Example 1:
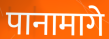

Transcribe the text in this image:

पानामागे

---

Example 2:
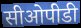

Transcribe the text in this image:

सीओपीडी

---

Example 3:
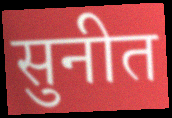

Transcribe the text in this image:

सुनीत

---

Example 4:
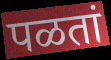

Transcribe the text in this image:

पळतां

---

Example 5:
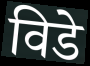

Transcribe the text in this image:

विडे